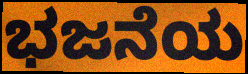
ಭಜನೆಯ